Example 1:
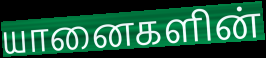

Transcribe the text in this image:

யானைகளின்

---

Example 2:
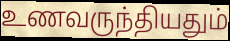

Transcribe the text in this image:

உணவருந்தியதும்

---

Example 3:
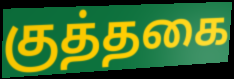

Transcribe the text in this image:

குத்தகை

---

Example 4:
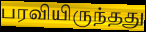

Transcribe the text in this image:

பரவியிருந்தது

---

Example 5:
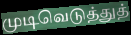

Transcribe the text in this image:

முடிவெடுத்துத்